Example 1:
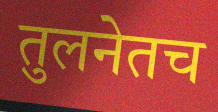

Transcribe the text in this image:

तुलनेतच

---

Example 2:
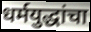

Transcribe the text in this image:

धर्मयुद्धांचा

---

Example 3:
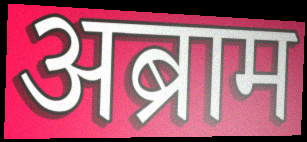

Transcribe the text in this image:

अब्राम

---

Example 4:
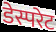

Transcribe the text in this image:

डेस्परेट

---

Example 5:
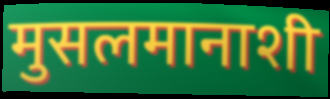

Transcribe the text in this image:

मुसलमानाशी